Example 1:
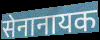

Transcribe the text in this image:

सेनानायक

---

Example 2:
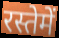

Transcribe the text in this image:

रस्तेमें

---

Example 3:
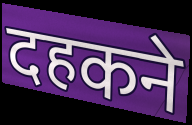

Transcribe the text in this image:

दहकने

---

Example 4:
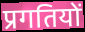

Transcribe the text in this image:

प्रगतियों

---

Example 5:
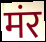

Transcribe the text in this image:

मंर